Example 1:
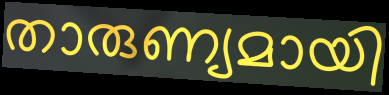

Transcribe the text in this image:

താരുണ്യമായി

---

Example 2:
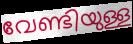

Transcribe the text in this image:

വേണ്ടിയുള്ള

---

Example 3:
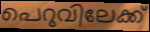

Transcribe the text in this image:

പെറുവിലേക്ക്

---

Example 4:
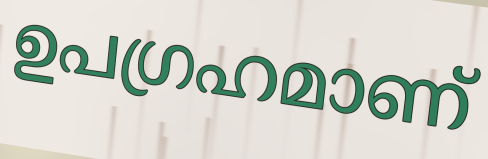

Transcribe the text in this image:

ഉപഗ്രഹമാണ്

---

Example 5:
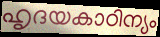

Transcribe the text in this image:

ഹൃദയകാഠിന്യം